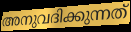
അനുവദിക്കുന്നത്